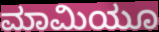
ಮಾಮಿಯೂ